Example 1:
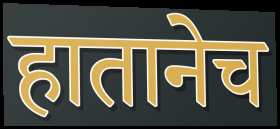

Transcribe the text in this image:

हातानेच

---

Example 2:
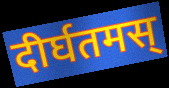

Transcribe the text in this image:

दीर्घतमस्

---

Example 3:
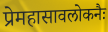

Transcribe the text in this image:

प्रेमहासावलोकनैः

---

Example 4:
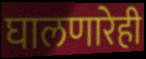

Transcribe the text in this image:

घालणारेही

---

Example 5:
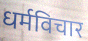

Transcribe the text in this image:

धर्मविचार